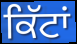
ਕਿੱਟਾਂ